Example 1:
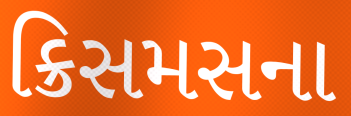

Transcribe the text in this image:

ક્રિસમસના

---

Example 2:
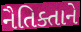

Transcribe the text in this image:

નૈતિક્તાને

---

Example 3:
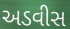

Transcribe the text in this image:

અડવીસ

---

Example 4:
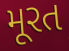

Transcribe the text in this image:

મૂરત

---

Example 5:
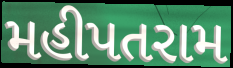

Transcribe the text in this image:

મહીપતરામ